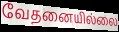
வேதனையில்லை